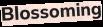
Blossoming